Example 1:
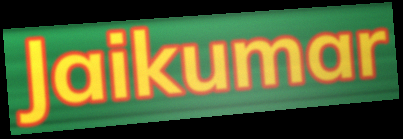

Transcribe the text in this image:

Jaikumar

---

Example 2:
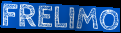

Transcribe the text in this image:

FRELIMO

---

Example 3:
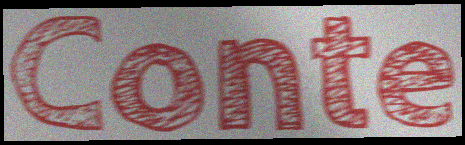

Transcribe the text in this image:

Conte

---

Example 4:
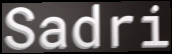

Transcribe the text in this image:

Sadri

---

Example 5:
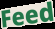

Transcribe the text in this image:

Feed